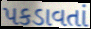
પકડાવતાં